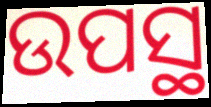
ଉପସ୍ଥ